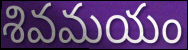
శివమయం